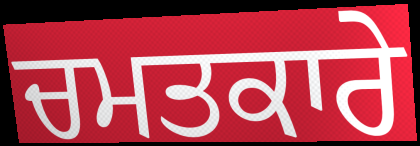
ਚਮਤਕਾਰੇ